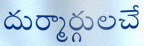
దుర్మార్గులచే